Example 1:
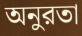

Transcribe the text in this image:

অনুরতা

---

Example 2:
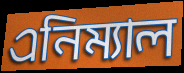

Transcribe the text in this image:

এনিম্যাল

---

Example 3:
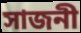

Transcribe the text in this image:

সাজনী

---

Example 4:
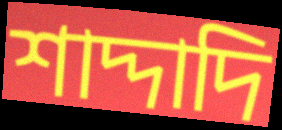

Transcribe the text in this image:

শাদ্দাদি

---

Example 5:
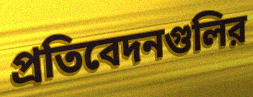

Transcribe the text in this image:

প্রতিবেদনগুলির